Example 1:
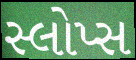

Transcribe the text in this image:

સ્લોપ્સ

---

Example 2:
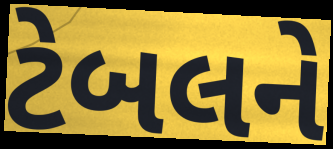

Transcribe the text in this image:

ટેબલને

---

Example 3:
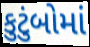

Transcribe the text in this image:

કુટુંબોમાં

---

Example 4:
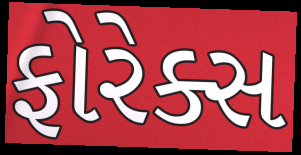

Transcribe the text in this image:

ફોરેક્સ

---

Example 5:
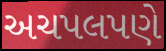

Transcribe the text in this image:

અચપલપણે